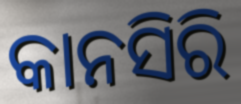
କାନସିରି